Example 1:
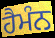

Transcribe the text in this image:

ਹੈਮੰਨ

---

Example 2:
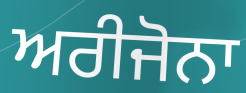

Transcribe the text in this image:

ਅਰੀਜੋਨਾ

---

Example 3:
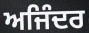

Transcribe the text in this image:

ਅਜਿੰਦਰ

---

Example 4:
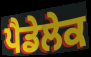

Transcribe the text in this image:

ਪੈਡੇਲੇਕ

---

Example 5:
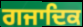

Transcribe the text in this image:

ਗਜਾਦਿਕ